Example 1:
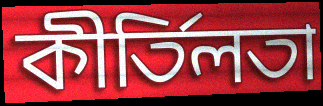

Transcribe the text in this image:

কীৰ্তিলতা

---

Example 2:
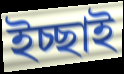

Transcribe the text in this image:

ইচ্ছাই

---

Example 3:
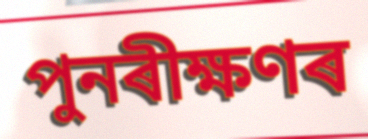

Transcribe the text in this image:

পুনৰীক্ষণৰ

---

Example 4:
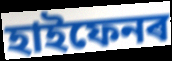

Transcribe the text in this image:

হাইফেনৰ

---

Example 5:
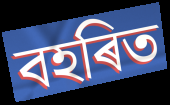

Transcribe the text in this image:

বহৰিত